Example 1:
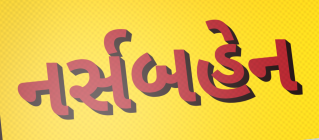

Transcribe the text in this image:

નર્સબહેન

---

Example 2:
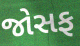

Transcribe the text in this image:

જોસફ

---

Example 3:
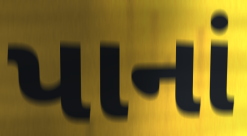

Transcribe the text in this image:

પાનાં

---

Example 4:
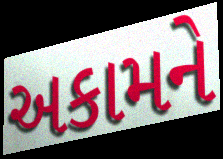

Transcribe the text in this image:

અકામને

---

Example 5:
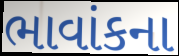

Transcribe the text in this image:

ભાવાંકના